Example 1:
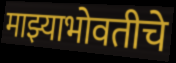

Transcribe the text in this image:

माझ्याभोवतीचे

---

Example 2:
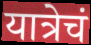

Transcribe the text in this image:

यात्रेचं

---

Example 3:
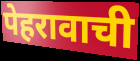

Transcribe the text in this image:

पेहरावाची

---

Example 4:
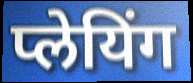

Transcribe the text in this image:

प्लेयिंग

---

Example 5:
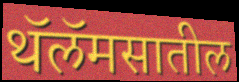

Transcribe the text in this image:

थॅलॅमसातील